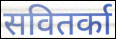
सवितर्का